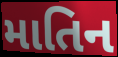
માતિન